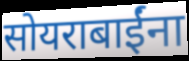
सोयराबाईंना